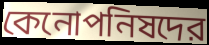
কেনোপনিষদের